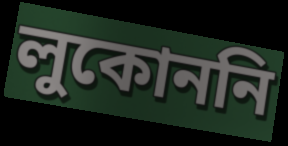
লুকোননি